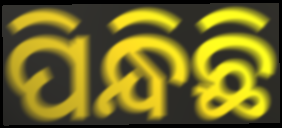
ପିନ୍ଧିଛି